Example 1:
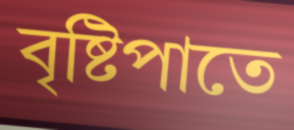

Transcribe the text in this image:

বৃষ্টিপাতে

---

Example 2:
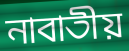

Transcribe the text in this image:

নাবাতীয়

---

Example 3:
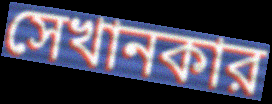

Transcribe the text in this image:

সেখানকার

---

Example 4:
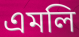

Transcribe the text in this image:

এমলি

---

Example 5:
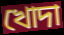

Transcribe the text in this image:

খোদা